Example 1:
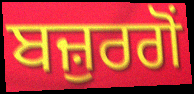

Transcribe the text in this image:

ਬਜ਼ੁਰਗੋਂ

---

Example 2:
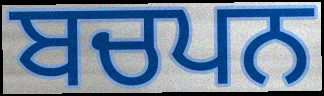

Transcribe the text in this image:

ਬਚਪਨ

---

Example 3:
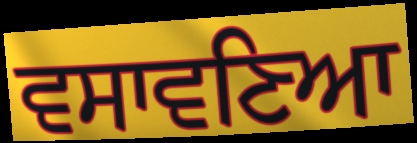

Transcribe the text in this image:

ਵਸਾਵਣਿਆ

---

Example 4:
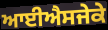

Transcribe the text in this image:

ਆਈਐਸਜੇਕੇ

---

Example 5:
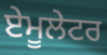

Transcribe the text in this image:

ਏਮੂਲੇਟਰ